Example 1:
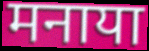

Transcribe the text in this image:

मनाया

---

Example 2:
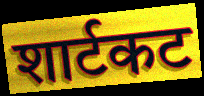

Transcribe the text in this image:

शार्टकट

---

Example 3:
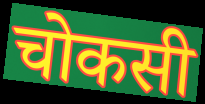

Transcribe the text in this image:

चोकसी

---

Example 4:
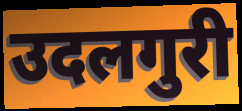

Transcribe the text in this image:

उदलगुरी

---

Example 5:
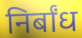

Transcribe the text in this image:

निर्बांध